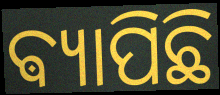
ଵ୍ୟାପିଛି